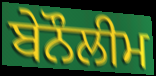
ਬੇਨੌਲੀਮ